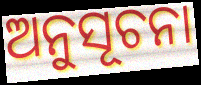
ଅନୁସୂଚନା